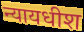
न्यायधीश